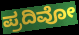
ಪ್ರದಿವೋ